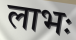
लाभः